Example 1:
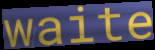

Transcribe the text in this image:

waite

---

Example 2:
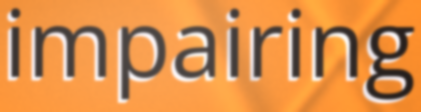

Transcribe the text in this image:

impairing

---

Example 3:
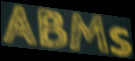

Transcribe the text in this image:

ABMs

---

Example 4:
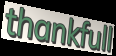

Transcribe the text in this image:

thankfull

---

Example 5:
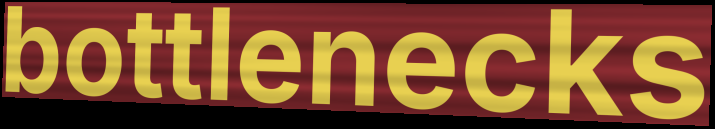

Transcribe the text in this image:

bottlenecks